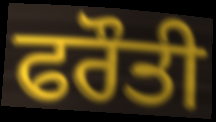
ਫਰੌਤੀ